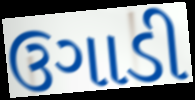
ઉગાડી